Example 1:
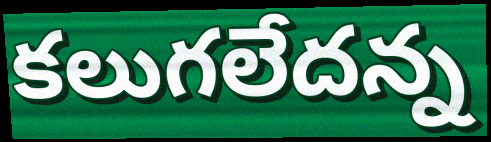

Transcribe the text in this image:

కలుగలేదన్న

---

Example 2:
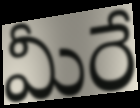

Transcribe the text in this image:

మీరే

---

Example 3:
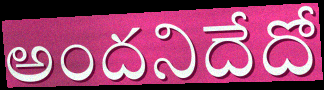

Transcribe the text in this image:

అందనిదేదో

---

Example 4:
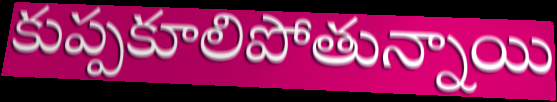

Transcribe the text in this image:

కుప్పకూలిపోతున్నాయి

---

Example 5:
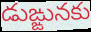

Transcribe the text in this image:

డుఙ్ఙునకు